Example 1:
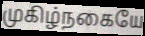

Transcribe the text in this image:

முகிழ்நகையே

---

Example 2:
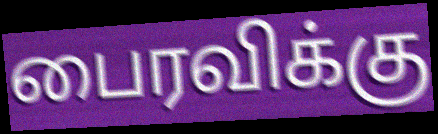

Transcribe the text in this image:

பைரவிக்கு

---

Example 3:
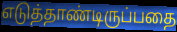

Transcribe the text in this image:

எடுத்தாண்டிருப்பதை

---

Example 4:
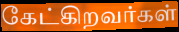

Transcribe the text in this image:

கேட்கிறவர்கள்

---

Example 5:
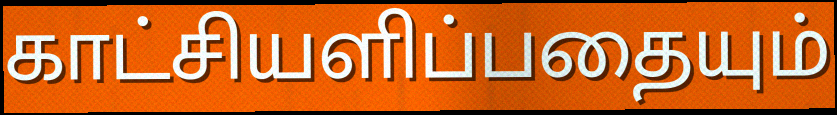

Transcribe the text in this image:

காட்சியளிப்பதையும்